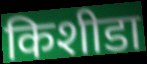
किशीडा